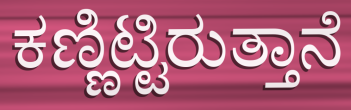
ಕಣ್ಣಿಟ್ಟಿರುತ್ತಾನೆ